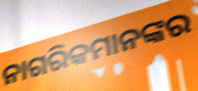
ନାଗରିକମାନଙ୍କର